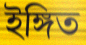
ইঙ্গিত